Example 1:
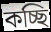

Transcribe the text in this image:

কচ্ছি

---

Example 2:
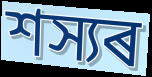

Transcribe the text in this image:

শস্যৰ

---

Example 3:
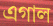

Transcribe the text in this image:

এগাল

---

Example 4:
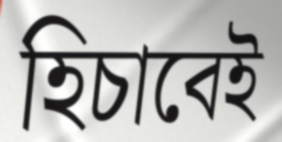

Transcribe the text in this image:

হিচাবেই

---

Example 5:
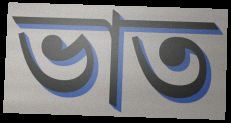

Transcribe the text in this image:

ভাত